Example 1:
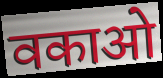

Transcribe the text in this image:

वकाओ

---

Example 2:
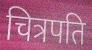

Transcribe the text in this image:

चित्रपति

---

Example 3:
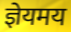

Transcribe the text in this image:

ज्ञेयमय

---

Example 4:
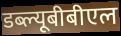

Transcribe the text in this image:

डब्ल्यूबीबीएल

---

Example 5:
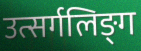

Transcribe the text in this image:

उत्सर्गलिङ्ग